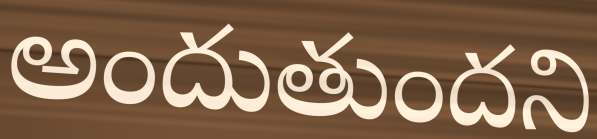
అందుతుందని